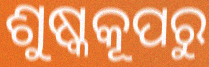
ଶୁଷ୍କକୂପରୁ